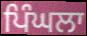
ਪਿੰਘਲਾ